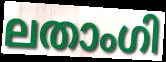
ലതാംഗി